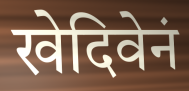
खेदिवेनं